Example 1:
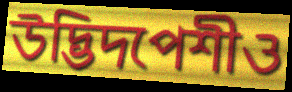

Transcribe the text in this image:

উদ্ভিদপেশীও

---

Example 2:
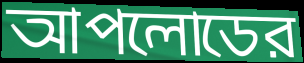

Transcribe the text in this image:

আপলোডের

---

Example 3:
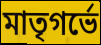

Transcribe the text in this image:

মাতৃগর্ভে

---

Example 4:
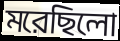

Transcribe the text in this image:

মরেছিলো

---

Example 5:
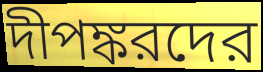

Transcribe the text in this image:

দীপঙ্করদের